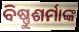
ବିଷ୍ଣୁଶର୍ମାଙ୍କ